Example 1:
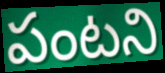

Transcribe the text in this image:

పంటని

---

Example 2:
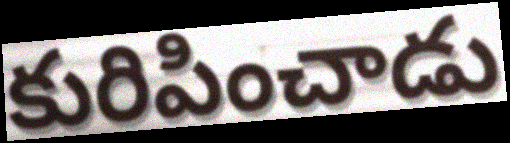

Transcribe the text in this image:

కురిపించాడు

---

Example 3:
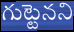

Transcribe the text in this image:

గుట్టెనని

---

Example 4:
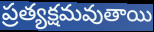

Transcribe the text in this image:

ప్రత్యక్షమవుతాయి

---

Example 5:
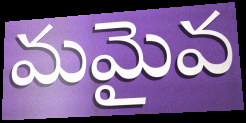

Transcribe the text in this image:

మమైవ